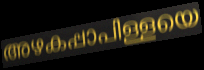
അഴകപ്പാപിള്ളയെ